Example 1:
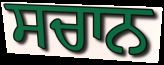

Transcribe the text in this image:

ਸਚਾਨ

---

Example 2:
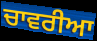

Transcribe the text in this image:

ਚਾਵਰੀਆ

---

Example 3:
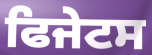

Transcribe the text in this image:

ਫਿਜੇਟਸ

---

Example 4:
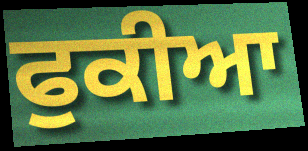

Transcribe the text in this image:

ਫੁਕੀਆ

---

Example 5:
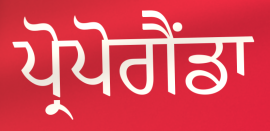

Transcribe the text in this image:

ਪ੍ਰੋਪੋਗੈਂਡਾ